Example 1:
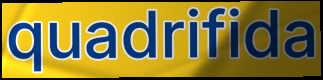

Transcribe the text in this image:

quadrifida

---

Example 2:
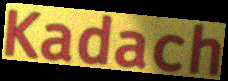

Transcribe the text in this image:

Kadach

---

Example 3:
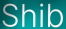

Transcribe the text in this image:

Shib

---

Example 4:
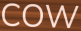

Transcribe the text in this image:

COW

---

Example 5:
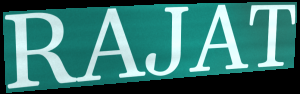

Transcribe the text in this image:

RAJAT